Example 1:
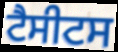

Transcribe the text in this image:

ਟੈਸੀਟਸ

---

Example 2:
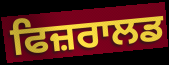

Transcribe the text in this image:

ਫਿਜ਼ਰਾਲਡ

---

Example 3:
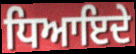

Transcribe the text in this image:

ਧਿਆਇਦੇ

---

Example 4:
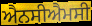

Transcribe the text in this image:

ਐਨਸੀਐਮਸੀ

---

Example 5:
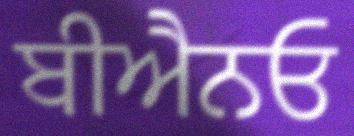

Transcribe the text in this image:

ਬੀਐਨਓ